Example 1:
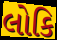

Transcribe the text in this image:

લોકિ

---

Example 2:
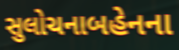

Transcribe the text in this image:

સુલોચનાબહેનના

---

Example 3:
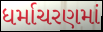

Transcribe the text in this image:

ધર્માચરણમાં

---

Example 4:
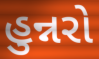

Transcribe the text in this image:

હુન્નરો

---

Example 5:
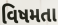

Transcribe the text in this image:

વિષમતા